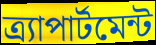
ত্র্যাপার্টমেন্ট